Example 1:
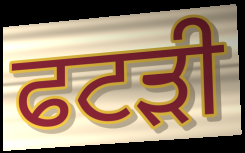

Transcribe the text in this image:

ਫਟੜੀ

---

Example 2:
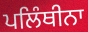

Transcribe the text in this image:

ਪਲਿੰਥੀਨਾ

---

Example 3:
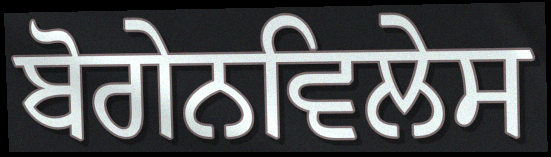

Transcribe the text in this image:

ਬੋਗੇਨਵਿਲੇਸ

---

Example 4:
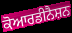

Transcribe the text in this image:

ਕੋਆਰਡੀਨੈਸ਼ਨ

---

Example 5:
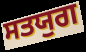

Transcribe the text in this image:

ਸਤਯੁਗ